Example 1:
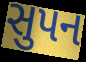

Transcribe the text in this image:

સુપન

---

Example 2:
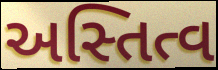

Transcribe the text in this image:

અસ્તિત્વ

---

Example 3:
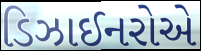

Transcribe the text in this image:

ડિઝાઈનરોએ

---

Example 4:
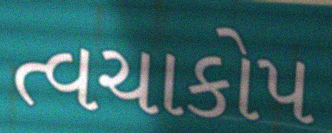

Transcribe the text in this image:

ત્વચાકોપ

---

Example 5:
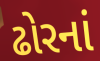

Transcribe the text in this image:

ઢોરનાં